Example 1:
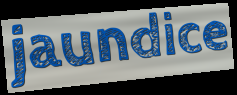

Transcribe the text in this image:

jaundice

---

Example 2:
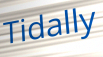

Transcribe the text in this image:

Tidally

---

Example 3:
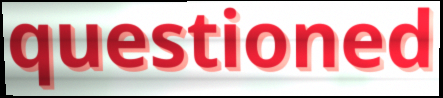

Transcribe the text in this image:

questioned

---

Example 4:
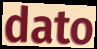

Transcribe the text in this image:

dato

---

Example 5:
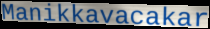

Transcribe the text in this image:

Manikkavacakar